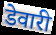
डेवारी